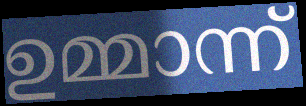
ഉമ്മാന്ന്